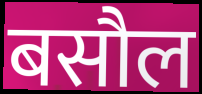
बसौल